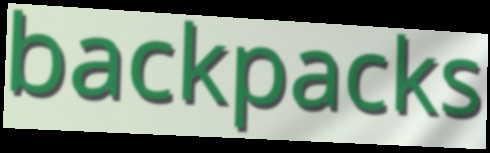
backpacks